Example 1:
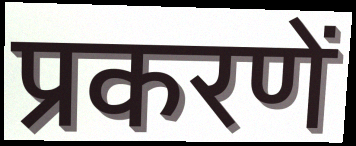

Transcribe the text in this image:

प्रकरणें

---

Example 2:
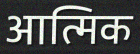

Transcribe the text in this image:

आत्मिक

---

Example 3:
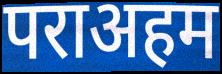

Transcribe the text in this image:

पराअहम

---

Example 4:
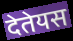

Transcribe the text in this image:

देतेयस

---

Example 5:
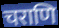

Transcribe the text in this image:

चराणि